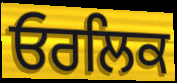
ਓਰਲਿਕ